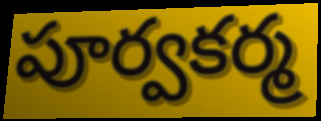
పూర్వకర్మ